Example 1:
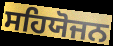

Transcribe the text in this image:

ਸਹਿਯੋਜਨ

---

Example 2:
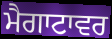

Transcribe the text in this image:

ਮੈਗਾਟਾਵਰ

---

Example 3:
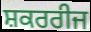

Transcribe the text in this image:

ਸ਼ਕਰਰੀਜ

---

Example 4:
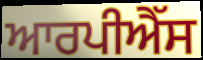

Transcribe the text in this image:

ਆਰਪੀਐੱਸ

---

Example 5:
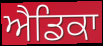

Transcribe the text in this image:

ਐਡਿਕਾ